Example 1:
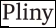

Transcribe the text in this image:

Pliny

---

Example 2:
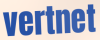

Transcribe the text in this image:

vertnet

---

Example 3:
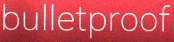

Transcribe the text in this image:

bulletproof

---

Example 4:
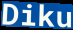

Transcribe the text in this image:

Diku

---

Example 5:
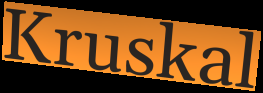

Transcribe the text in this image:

Kruskal